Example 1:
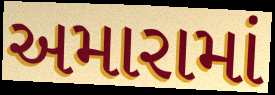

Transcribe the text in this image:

અમારામાં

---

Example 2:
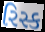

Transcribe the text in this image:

રિસ્ક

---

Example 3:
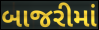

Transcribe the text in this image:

બાજરીમાં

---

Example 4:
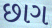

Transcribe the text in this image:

છાગ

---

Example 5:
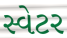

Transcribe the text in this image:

સ્વેટર